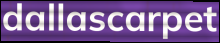
dallascarpet